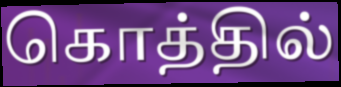
கொத்தில்